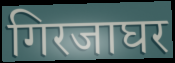
गिरजाघर